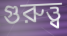
গুৰুত্ত্ব